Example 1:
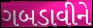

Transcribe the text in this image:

ગબડાવીને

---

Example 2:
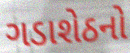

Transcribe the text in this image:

ગડાશેઠનો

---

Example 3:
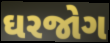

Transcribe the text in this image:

ઘરજોગ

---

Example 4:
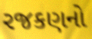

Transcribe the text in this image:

રજકણનો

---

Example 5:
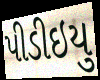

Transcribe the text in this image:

પીડીઇયુ